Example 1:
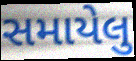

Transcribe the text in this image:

સમાયેલુ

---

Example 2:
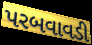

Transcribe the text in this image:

પરબવાવડી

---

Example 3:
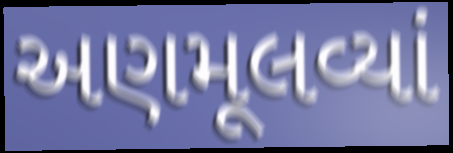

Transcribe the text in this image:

અણમૂલવ્યાં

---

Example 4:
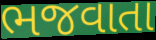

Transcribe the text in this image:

ભજવાતા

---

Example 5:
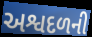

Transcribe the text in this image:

અશ્વદળની